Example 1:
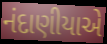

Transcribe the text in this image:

નંદાણીયાએ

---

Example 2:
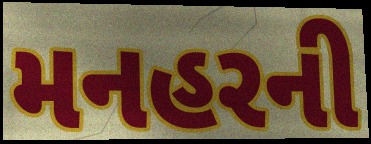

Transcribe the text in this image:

મનહરની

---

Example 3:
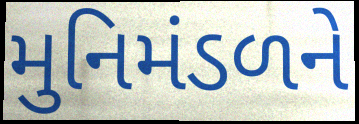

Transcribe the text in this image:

મુનિમંડળને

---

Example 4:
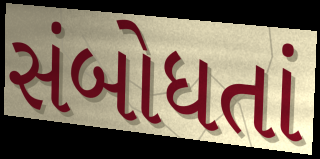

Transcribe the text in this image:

સંબોધતાં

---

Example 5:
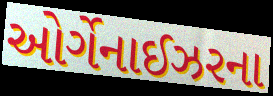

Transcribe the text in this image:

ઓર્ગેનાઈઝરના